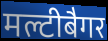
मल्‍टीबैगर